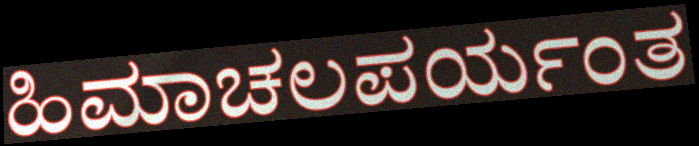
ಹಿಮಾಚಲಪರ್ಯಂತ